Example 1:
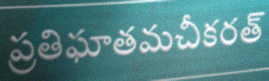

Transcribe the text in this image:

ప్రతిఘాతమచీకరత్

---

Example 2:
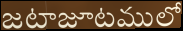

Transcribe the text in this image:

జటాజూటములో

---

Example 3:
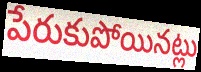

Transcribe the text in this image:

పేరుకుపోయినట్లు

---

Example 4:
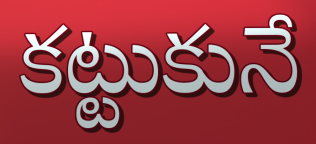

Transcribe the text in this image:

కట్టుకునే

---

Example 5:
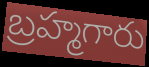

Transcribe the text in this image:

బ్రహ్మగారు